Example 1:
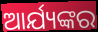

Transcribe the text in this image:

ଆର୍ଯ୍ୟଙ୍କର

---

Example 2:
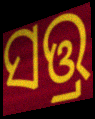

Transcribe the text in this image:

ସତ୍ତ୍ର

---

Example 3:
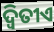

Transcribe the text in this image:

ଦ୍ୱିତୀଏ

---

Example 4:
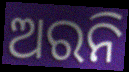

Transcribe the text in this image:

ଅରନି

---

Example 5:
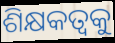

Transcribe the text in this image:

ଶିକ୍ଷକତ୍ଵକୁ